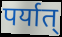
पर्यात्